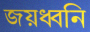
জয়ধ্বনি